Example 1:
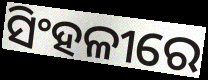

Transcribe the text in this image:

ସିଂହଳୀରେ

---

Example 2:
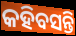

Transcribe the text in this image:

କହିବସନ୍ତି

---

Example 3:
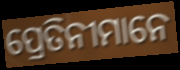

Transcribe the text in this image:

ପ୍ରେତିନୀମାନେ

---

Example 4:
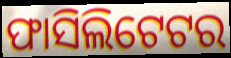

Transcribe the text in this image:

ଫାସିଲିଟେଟର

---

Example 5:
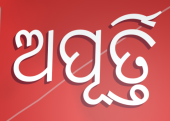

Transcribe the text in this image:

ଅପୂର୍ତ୍ତି